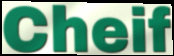
Cheif